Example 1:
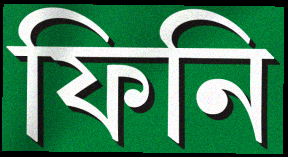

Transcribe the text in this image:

ফিনি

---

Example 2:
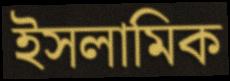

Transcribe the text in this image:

ইসলামিক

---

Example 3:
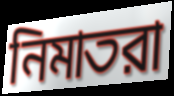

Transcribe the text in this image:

নিমাতরা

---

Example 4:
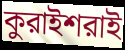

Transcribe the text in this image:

কুরাইশরাই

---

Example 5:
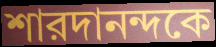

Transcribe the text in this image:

শারদানন্দকে